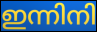
ഇന്നിനി